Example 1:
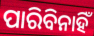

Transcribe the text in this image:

ପାରିବିନାହିଁ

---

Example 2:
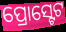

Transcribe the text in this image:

ପ୍ରୋସ୍ଟେଟ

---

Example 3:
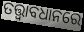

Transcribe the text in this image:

ତତ୍ତ୍ଵାବଧାନରେ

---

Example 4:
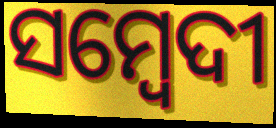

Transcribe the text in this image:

ସମ୍ବେଦୀ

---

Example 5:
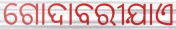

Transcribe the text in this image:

ଗୋଦାବରୀଯାଏ